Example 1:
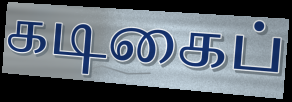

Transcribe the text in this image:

கடிகைப்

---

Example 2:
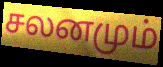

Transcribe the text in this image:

சலனமும்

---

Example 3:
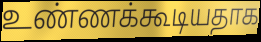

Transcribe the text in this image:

உண்ணக்கூடியதாக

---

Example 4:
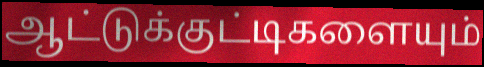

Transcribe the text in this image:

ஆட்டுக்குட்டிகளையும்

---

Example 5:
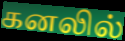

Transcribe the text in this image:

கனலில்